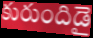
కురుందిడై